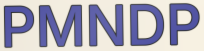
PMNDP